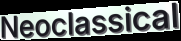
Neoclassical